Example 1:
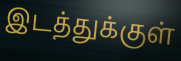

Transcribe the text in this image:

இடத்துக்குள்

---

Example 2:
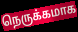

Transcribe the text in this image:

நெருக்கமாக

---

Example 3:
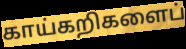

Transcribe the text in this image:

காய்கறிகளைப்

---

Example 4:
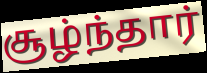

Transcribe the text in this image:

சூழ்ந்தார்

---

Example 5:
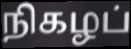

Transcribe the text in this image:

நிகழப்